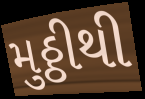
મુઠ્ઠીથી